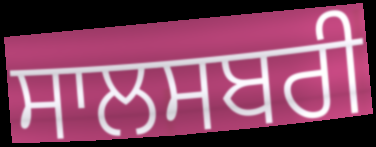
ਸਾਲਸਬਰੀ